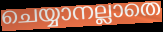
ചെയ്യാനല്ലാതെ